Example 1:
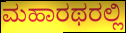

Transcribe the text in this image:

ಮಹಾರಥರಲ್ಲಿ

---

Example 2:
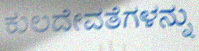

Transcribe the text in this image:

ಕುಲದೇವತೆಗಳನ್ನು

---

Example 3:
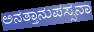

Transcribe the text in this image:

ಅನತ್ತಾನುಪಸ್ಸನಾ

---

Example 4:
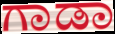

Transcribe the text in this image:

ಗಾಡಾ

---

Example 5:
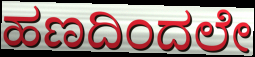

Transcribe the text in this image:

ಹಣದಿಂದಲೇ